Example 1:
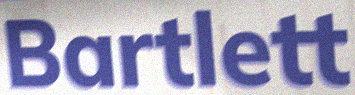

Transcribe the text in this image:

Bartlett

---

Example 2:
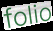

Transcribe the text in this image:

folio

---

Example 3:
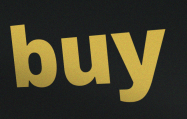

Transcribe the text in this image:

buy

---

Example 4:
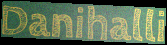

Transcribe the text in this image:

Danihalli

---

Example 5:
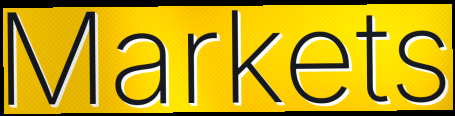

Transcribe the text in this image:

Markets